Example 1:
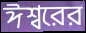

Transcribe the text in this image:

ঈশ্বরের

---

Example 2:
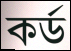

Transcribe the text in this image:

কর্ড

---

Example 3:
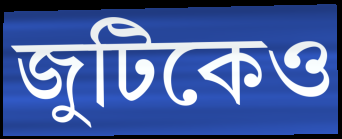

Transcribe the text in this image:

জুটিকেও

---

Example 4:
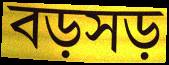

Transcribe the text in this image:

বড়সড়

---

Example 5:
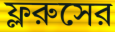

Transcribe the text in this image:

ফ্লরুসের